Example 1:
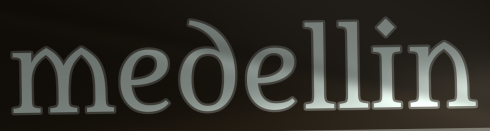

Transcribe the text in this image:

medellin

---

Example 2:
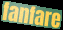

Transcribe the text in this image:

fanfare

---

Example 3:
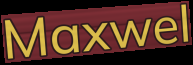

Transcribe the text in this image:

Maxwel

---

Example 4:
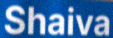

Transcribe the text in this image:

Shaiva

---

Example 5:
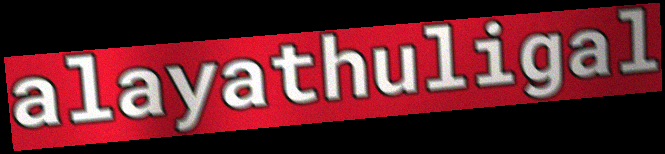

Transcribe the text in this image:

alayathuligal